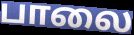
பாலை